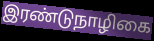
இரண்டுநாழிகை